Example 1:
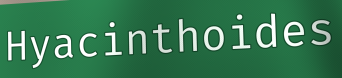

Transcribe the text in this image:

Hyacinthoides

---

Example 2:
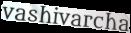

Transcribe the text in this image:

vashivarcha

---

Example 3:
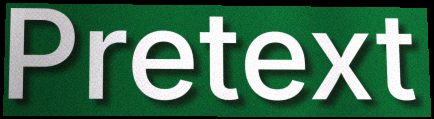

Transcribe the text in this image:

Pretext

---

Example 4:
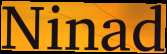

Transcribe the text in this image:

Ninad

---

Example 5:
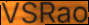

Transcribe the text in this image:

VSRao